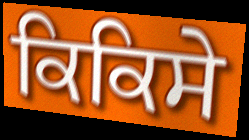
ਕਿਕਿਸੇ